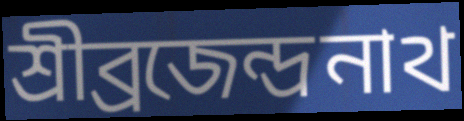
শ্রীব্রজেন্দ্রনাথ